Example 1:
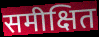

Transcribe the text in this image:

समीक्षित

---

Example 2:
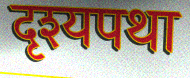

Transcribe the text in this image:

दृश्यपथा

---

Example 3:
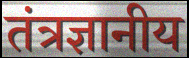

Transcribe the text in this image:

तंत्रज्ञानीय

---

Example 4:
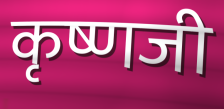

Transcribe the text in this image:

कृष्णजी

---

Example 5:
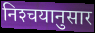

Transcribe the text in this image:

निश्चयानुसार